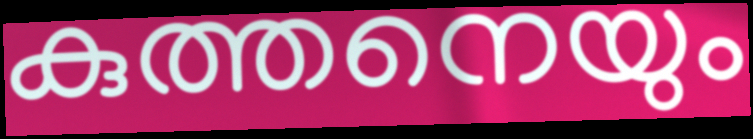
കുത്തനെയും